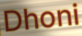
Dhoni